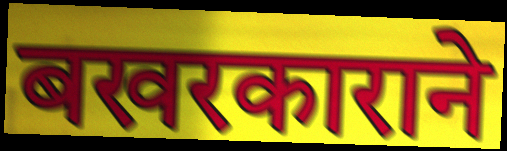
बखरकाराने